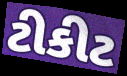
ટીકીટ